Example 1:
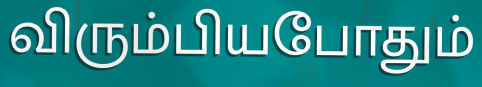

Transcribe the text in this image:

விரும்பியபோதும்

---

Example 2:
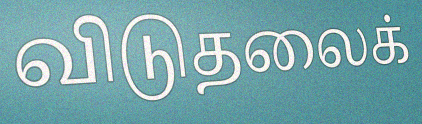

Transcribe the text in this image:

விடுதலைக்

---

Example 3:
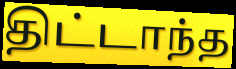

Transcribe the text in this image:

திட்டாந்த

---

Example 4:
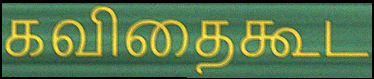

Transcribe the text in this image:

கவிதைகூட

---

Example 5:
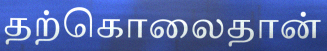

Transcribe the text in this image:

தற்கொலைதான்